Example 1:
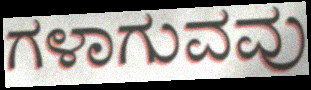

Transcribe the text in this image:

ಗಳಾಗುವವು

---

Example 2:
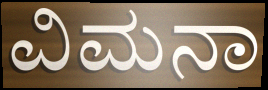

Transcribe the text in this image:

ವಿಮನಾ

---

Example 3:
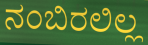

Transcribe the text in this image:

ನಂಬಿರಲಿಲ್ಲ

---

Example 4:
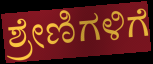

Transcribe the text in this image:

ಶ್ರೇಣಿಗಳಿಗೆ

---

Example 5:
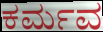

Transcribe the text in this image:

ಕರ್ಮವ